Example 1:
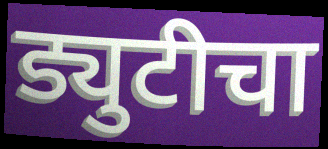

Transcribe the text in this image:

ड्युटीचा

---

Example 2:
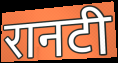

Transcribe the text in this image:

रानटी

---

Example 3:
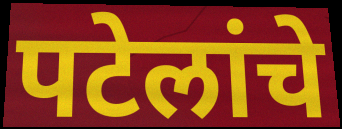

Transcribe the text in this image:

पटेलांचे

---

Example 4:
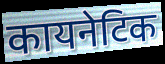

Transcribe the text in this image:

कायनेटिक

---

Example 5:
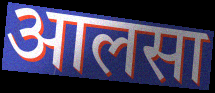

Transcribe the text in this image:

आलसा